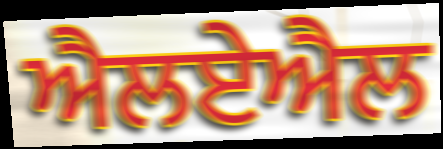
ਐਲਏਐਲ